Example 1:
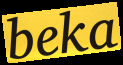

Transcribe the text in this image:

beka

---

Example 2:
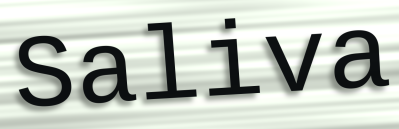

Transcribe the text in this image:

Saliva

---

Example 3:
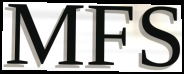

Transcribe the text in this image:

MFS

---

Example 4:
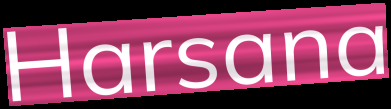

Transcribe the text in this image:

Harsana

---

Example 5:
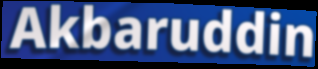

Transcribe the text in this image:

Akbaruddin